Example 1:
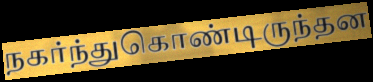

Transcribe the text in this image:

நகர்ந்துகொண்டிருந்தன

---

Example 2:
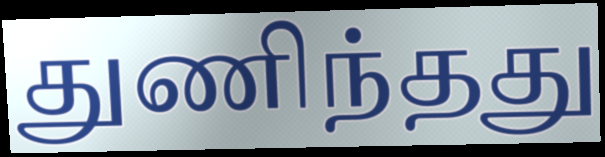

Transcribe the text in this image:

துணிந்தது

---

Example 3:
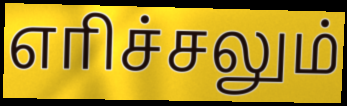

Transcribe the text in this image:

எரிச்சலும்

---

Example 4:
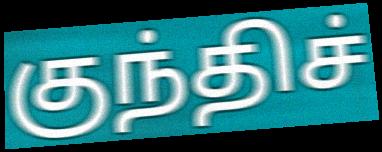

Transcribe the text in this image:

குந்திச்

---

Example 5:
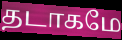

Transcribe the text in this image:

தடாகமே